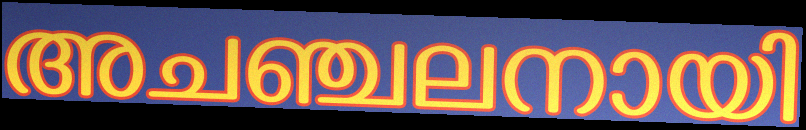
അചഞ്ചലനായി